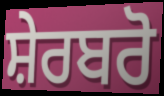
ਸ਼ੇਰਬਰੋ